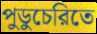
পুডুচেরিতে